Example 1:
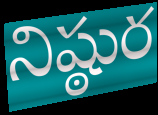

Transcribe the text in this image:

నిష్ఠుర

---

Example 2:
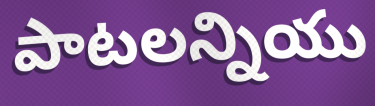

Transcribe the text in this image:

పాటలన్నియు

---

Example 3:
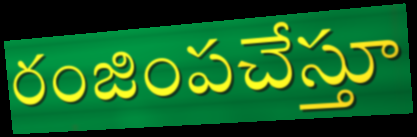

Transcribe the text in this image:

రంజింపచేస్తూ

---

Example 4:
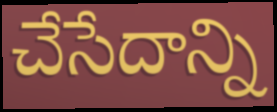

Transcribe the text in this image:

చేసేదాన్ని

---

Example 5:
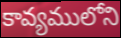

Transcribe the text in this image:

కావ్యములోని